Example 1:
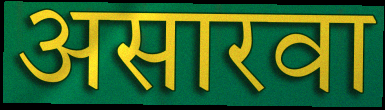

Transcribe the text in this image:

असारवा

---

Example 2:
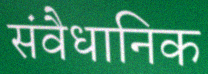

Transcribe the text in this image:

संवैधानिक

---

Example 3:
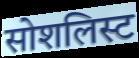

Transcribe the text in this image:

सोशलिस्ट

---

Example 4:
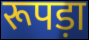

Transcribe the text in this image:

रूपड़ा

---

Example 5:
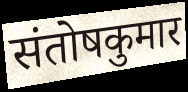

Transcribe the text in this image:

संतोषकुमार